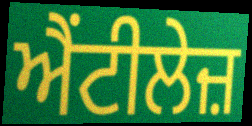
ਐਂਟੀਲੇਜ਼